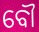
ବୌ